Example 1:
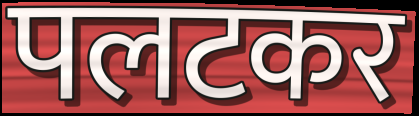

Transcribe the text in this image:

पलटकर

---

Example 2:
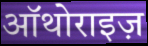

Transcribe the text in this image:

ऑथोराइज़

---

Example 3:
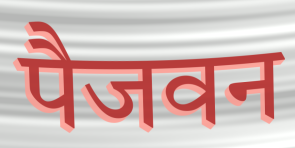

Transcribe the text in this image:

पैजवन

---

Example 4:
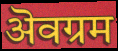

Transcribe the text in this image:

ऄवग्रम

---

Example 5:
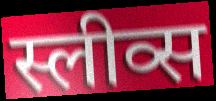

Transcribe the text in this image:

स्लीव्स